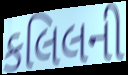
કલિલની